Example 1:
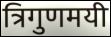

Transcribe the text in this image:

त्रिगुणमयी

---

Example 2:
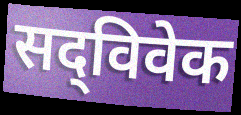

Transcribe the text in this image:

सद्‌विवेक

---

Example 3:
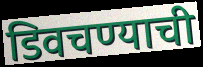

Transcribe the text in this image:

डिवचण्याची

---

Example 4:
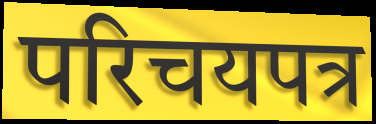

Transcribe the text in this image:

परिचयपत्र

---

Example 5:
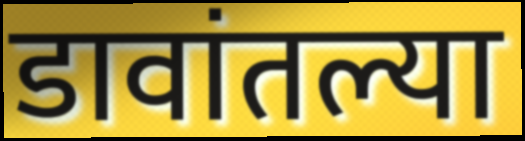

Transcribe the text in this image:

डावांतल्या